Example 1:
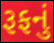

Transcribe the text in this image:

રૂફનું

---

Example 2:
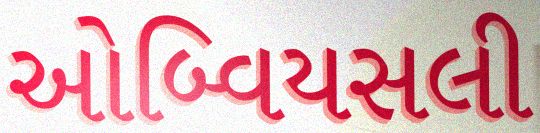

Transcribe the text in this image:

ઓબ્વિયસલી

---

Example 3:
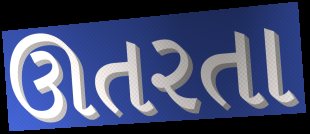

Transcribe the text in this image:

ઊતરતા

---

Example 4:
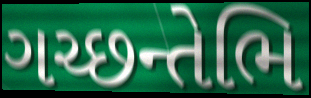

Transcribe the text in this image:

ગચ્છન્તેભિ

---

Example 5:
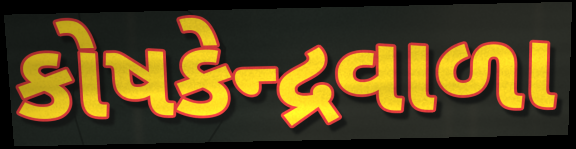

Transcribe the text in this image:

કોષકેન્દ્રવાળા